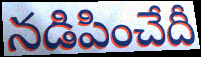
నడిపించేదీ